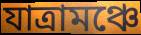
যাত্রামঞ্চে